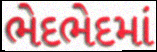
ભેદભેદમાં